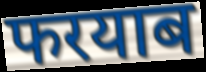
फरयाब